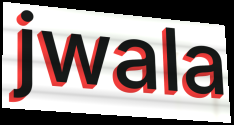
jwala